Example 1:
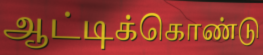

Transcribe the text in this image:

ஆட்டிக்கொண்டு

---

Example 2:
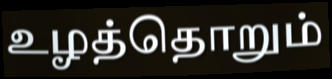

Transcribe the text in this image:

உழத்தொறும்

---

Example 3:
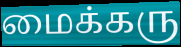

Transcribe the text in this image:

மைக்கரு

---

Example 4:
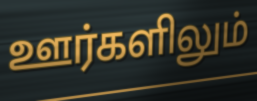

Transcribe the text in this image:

ஊர்களிலும்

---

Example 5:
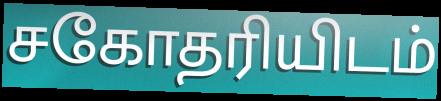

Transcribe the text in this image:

சகோதரியிடம்